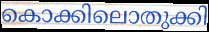
കൊക്കിലൊതുക്കി